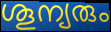
ശൂന്യരും